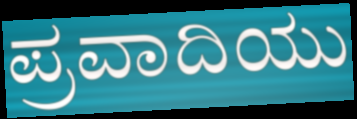
ಪ್ರವಾದಿಯು